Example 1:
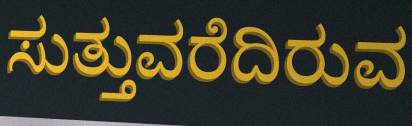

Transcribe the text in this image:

ಸುತ್ತುವರೆದಿರುವ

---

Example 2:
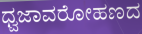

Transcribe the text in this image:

ಧ್ವಜಾವರೋಹಣದ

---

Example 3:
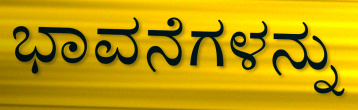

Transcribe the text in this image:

ಭಾವನೆಗಳನ್ನು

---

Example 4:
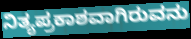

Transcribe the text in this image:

ನಿತ್ಯಪ್ರಕಾಶವಾಗಿರುವನು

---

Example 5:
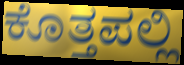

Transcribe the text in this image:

ಕೊತ್ತಪಲ್ಲಿ